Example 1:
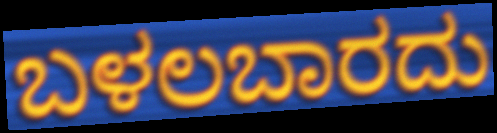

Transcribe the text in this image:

ಬಳಲಬಾರದು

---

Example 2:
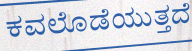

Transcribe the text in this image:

ಕವಲೊಡೆಯುತ್ತದೆ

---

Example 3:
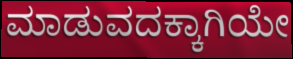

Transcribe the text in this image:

ಮಾಡುವದಕ್ಕಾಗಿಯೇ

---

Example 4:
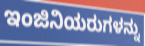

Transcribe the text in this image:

ಇಂಜಿನಿಯರುಗಳನ್ನು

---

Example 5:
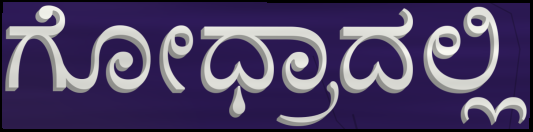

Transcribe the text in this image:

ಗೋಧ್ರಾದಲ್ಲಿ